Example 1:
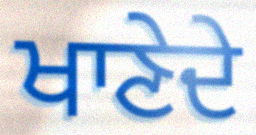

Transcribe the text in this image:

ਖਾਣੇਦੇ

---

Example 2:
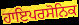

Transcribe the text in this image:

ਹਾਇਪਰਸੋਨਿਕ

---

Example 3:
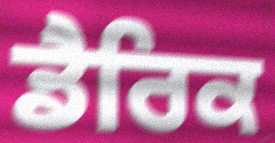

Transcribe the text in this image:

ਡੈਰਿਕ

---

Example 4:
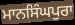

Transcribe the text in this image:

ਮਾਨਸਿੰਘਪੁਰਾ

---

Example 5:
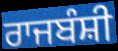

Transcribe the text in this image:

ਰਾਜਬੰਸ਼ੀ